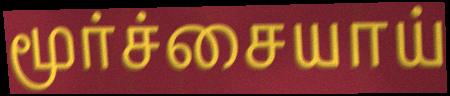
மூர்ச்சையாய்